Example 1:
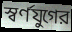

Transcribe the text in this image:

স্বর্ণযুগের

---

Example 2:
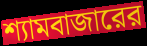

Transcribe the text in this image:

শ্যামবাজারের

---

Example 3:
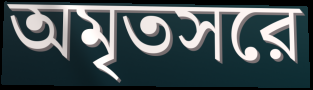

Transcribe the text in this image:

অমৃতসরে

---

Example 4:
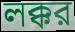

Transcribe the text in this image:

লক্কর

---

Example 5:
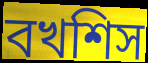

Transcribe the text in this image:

বখশিস